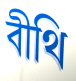
বীথি